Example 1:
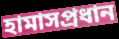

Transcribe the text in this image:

হামাসপ্রধান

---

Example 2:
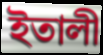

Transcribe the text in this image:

ইতালী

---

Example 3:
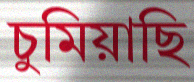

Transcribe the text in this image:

চুমিয়াছি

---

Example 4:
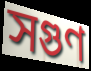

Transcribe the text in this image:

সগুণ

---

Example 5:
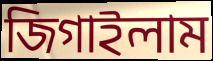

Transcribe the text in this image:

জিগাইলাম